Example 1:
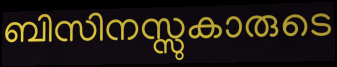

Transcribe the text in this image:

ബിസിനസ്സുകാരുടെ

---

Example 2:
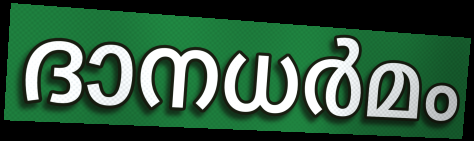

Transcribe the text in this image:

ദാനധർമം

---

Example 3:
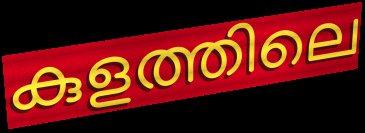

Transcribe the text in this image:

കുളത്തിലെ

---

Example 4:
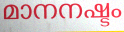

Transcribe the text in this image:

മാനനഷ്ടം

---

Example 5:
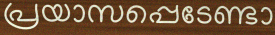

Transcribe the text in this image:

പ്രയാസപ്പെടേണ്ടാ